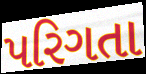
પરિગતા